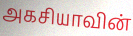
அகசியாவின்